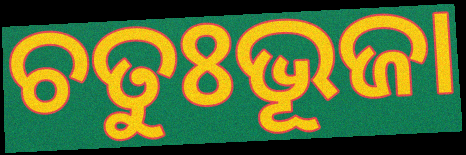
ଚତୁଃଭୂଜା